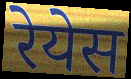
रेयेस